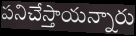
పనిచేస్తాయన్నారు